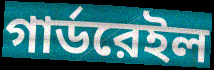
গার্ডরেইল